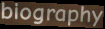
biography